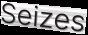
Seizes